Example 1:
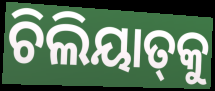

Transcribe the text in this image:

ଚିଲିୟାତ୍‍କୁ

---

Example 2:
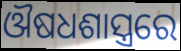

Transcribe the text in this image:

ଔଷଧଶାସ୍ତ୍ରରେ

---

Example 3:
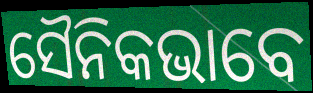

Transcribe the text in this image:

ସୈନିକଭାବେ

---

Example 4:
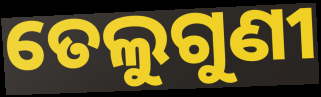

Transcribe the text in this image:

ତେଲୁଗୁଣୀ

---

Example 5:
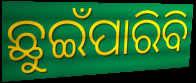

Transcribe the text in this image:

ଛୁଇଁପାରିବି